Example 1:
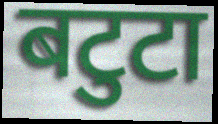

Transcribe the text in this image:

बटुटा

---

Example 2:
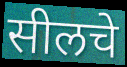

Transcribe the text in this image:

सीलचे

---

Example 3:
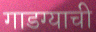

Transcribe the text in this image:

गाडग्याची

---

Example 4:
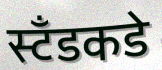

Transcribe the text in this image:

स्टॅंडकडे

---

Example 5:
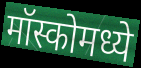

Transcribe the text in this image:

मॉस्कोमध्ये